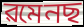
ৱমেনছ